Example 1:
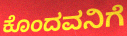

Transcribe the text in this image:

ಕೊಂದವನಿಗೆ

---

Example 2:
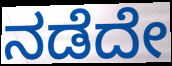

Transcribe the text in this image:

ನಡೆದೇ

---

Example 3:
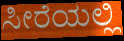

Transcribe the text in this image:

ಸೀರೆಯಲ್ಲಿ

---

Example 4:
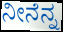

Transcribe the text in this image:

ನೀನೆನ್ನ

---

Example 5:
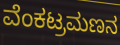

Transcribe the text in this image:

ವೆಂಕಟ್ರಮಣನ